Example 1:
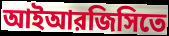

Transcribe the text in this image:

আইআরজিসিতে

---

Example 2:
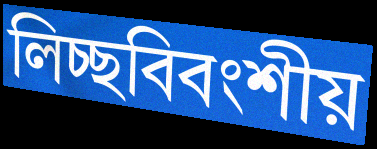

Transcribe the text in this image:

লিচ্ছবিবংশীয়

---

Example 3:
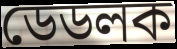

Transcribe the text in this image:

ডেডলক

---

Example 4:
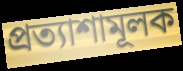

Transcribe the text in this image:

প্রত্যাশামূলক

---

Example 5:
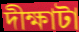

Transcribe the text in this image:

দীক্ষাটা